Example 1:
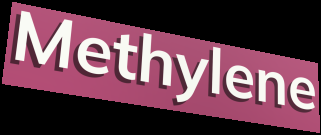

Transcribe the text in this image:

Methylene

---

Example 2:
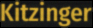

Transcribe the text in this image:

Kitzinger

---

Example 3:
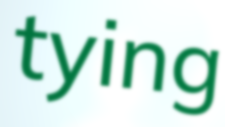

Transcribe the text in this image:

tying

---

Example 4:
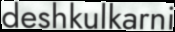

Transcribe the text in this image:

deshkulkarni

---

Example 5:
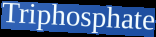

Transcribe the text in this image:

Triphosphate